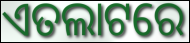
ଏତଲାଟରେ